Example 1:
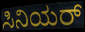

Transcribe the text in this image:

ಸಿನಿಯರ್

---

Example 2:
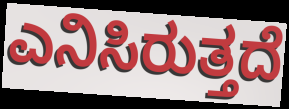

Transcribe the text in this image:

ಎನಿಸಿರುತ್ತದೆ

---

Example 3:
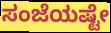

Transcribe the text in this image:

ಸಂಜೆಯಷ್ಟೇ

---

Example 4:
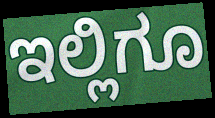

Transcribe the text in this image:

ಇಲ್ಲಿಗೂ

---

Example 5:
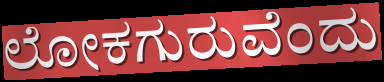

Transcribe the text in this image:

ಲೋಕಗುರುವೆಂದು